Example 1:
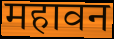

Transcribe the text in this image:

महावन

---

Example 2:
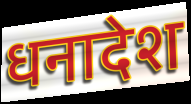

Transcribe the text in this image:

धनादेश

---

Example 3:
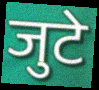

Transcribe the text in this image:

जुटे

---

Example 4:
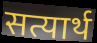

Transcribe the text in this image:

सत्यार्थ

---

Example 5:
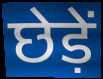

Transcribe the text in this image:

छेड़ें